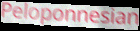
Peloponnesian